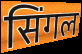
सिंगल